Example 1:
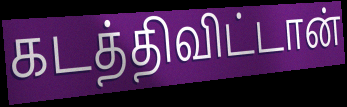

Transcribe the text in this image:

கடத்திவிட்டான்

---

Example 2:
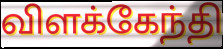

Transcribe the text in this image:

விளக்கேந்தி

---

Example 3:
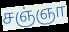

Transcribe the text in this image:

சஞ்ஞா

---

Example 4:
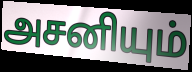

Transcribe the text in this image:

அசனியும்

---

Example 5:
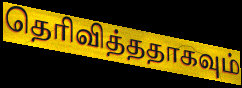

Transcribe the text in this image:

தெரிவித்ததாகவும்